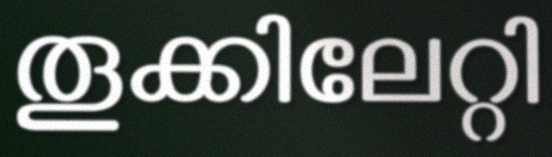
തൂക്കിലേറ്റി